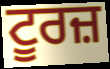
ਟੂਰਜ਼